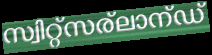
സ്വിറ്റ്സര്ലാന്ഡ്